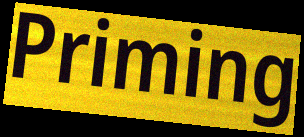
Priming